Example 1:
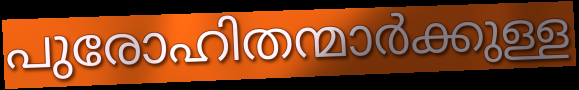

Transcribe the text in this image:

പുരോഹിതന്മാർക്കുള്ള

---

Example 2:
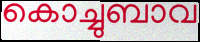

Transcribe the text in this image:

കൊച്ചുബാവ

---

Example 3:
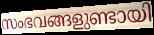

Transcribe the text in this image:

സംഭവങ്ങളുണ്ടായി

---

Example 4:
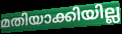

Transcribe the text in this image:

മതിയാക്കിയില്ല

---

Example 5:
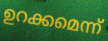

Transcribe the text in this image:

ഉറക്കമെന്ന്